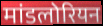
मांडलोरियन